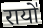
रायो॑